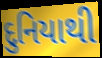
દુનિયાથી